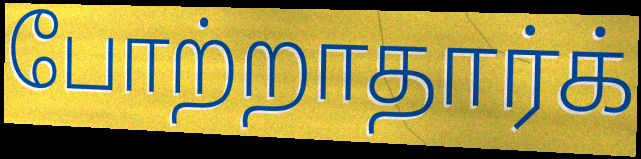
போற்றாதார்க்